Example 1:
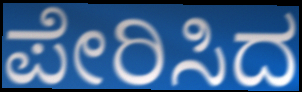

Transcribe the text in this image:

ಪೇರಿಸಿದ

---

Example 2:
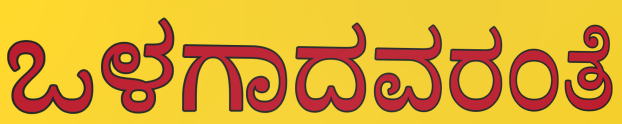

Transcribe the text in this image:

ಒಳಗಾದವರಂತೆ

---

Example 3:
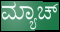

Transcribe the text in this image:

ಮ್ಯಾಚ್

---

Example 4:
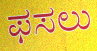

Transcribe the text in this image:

ಫಸಲು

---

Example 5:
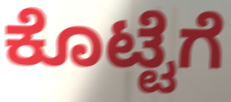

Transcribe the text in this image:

ಕೊಟ್ಟೆಗೆ